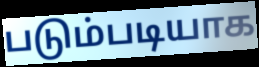
படும்படியாக